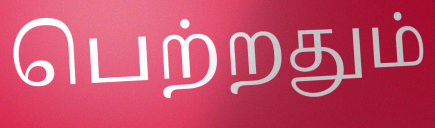
பெற்றதும்